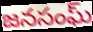
జనసంఘ్